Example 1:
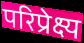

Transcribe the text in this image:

परिप्रेक्ष्य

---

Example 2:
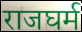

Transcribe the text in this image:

राजघर्म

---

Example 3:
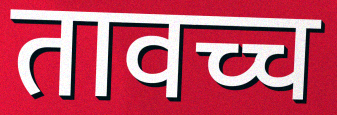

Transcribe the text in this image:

तावच्च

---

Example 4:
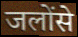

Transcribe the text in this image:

जलोंसे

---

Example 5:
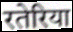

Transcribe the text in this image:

रतेरिया